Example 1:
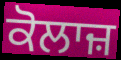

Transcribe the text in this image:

ਕੋਲਾਜ਼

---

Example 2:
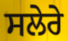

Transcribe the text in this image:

ਸਲੇਰੇ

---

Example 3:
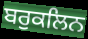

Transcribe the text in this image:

ਬਰੁਕਲਿਨ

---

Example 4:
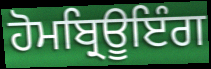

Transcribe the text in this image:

ਹੋਮਬ੍ਰਿਊਇੰਗ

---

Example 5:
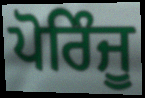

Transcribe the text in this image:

ਪੋਰਿੰਜੂ